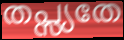
തപ്സ്യതേ